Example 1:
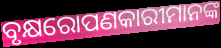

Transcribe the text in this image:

ବୃକ୍ଷରୋପଣକାରୀମାନଙ୍କ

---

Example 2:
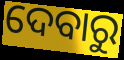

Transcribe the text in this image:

ଦେବାରୁ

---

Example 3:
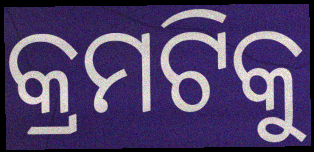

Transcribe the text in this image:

କ୍ରମଟିକୁ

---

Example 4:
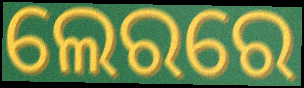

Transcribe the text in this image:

ଲେରରେ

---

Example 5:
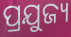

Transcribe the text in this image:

ପ୍ରଯୁଜ୍ୟ